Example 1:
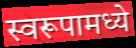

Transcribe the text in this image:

स्वरूपामध्ये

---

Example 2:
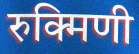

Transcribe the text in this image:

रुक्‍मिणी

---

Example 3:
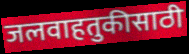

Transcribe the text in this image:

जलवाहतुकीसाठी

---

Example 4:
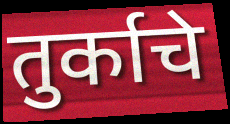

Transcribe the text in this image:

तुर्काचे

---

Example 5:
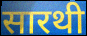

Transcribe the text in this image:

सारथी